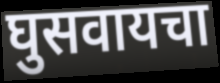
घुसवायचा